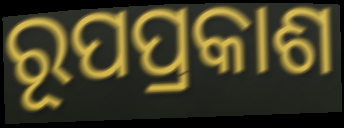
ରୂପପ୍ରକାଶ